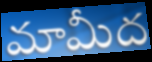
మామీద